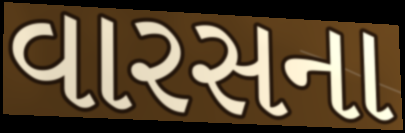
વારસના